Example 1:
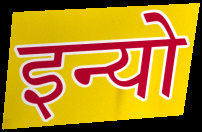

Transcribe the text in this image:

इन्यो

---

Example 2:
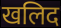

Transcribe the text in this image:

खलिद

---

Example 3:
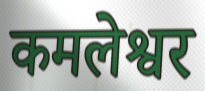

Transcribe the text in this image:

कमलेश्वर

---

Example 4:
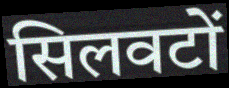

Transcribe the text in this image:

सिलवटों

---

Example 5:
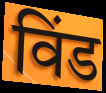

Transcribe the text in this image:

विंड